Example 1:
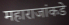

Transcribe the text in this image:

महाराजांकडे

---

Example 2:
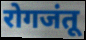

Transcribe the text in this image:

रोगजंतू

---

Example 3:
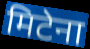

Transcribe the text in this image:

मिटेना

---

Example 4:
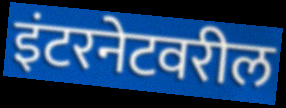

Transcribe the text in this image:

इंटरनेटवरील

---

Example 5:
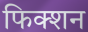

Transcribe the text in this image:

फिक्‍शन